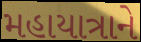
મહાયાત્રાને